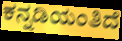
ಕನ್ನಡಿಯಂತಿದೆ